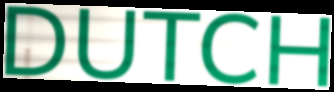
DUTCH